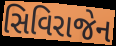
સિવિરાજેન